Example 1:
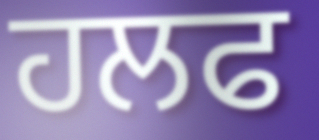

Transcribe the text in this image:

ਹਲਫ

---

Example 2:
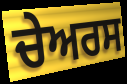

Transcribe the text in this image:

ਚੇਅਰਸ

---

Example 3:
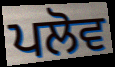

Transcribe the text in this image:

ਪਲੋਵ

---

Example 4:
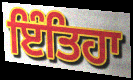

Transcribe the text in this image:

ਇੰਤਿਹਾ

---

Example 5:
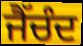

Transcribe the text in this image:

ਜੈੱਚੰਦ